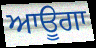
ਆਊਗਾ